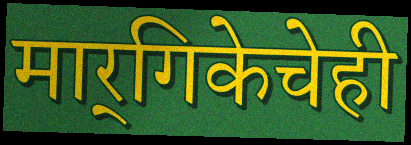
मार्गिकेचेही